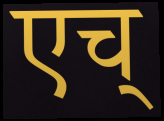
एच्